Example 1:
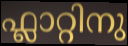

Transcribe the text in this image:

ഫ്ലാറ്റിനു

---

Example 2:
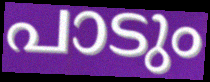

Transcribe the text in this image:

പാടും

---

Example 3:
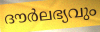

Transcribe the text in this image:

ദൗർലഭ്യവും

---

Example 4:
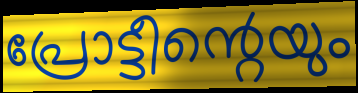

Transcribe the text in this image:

പ്രോട്ടീന്റെയും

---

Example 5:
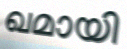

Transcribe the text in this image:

ഖമായി